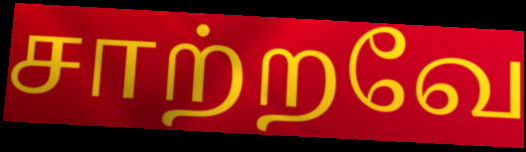
சாற்றவே